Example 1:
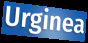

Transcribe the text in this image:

Urginea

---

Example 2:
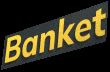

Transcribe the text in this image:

Banket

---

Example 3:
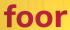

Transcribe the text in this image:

foor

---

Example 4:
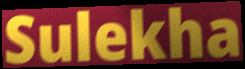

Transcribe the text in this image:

Sulekha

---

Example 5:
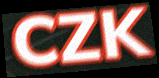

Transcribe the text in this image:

CZK